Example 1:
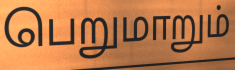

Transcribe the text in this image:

பெறுமாறும்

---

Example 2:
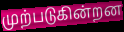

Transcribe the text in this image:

முற்படுகின்றன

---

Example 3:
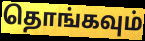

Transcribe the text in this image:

தொங்கவும்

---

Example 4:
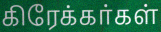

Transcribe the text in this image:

கிரேக்கர்கள்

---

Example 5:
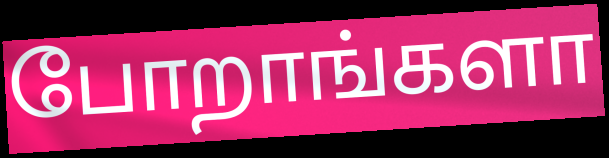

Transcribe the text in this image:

போறாங்களா